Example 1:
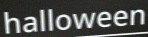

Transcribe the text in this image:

halloween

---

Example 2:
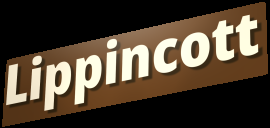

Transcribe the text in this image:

Lippincott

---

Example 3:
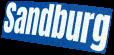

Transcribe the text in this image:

Sandburg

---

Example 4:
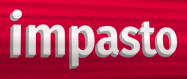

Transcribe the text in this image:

impasto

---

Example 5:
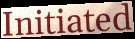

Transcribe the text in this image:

Initiated